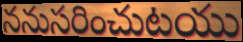
ననుసరించుటయు